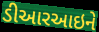
ડીઆરઆઇને